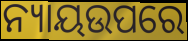
ନ୍ୟାୟଉପରେ